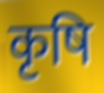
कृषि